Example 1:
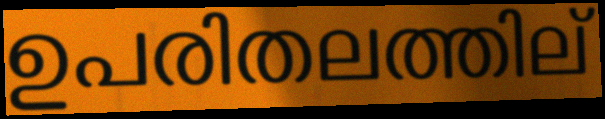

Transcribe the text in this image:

ഉപരിതലത്തില്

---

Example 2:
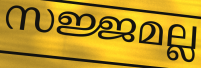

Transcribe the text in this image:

സജ്ജമല്ല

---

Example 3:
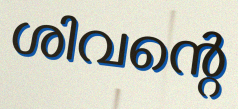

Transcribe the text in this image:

ശിവന്റെ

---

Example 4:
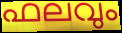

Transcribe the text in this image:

ഫലവും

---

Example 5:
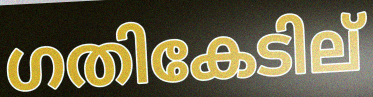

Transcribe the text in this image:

ഗതികേടില്